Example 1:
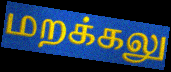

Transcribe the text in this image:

மறக்கலு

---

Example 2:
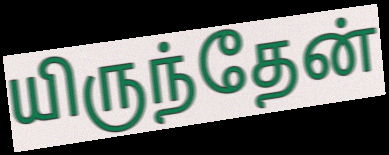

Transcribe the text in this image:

யிருந்தேன்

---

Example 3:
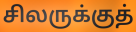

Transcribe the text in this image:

சிலருக்குத்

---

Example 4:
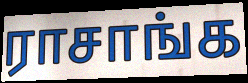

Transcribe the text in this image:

ராசாங்க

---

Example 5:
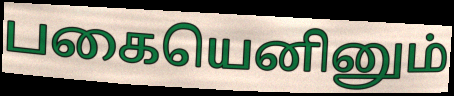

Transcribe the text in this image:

பகையெனினும்